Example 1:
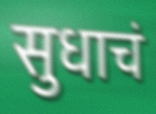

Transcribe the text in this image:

सुधाचं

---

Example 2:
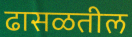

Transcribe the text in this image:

ढासळतील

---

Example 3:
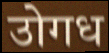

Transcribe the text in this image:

उोगध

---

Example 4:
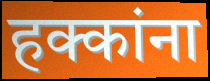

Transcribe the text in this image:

हक्कांना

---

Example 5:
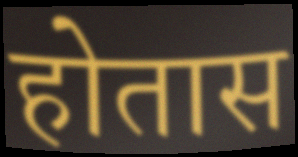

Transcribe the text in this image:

होतास